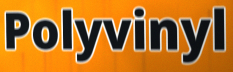
Polyvinyl